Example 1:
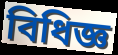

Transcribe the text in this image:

বিধিজ্ঞ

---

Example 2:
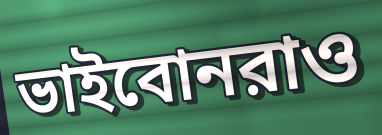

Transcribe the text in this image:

ভাইবোনরাও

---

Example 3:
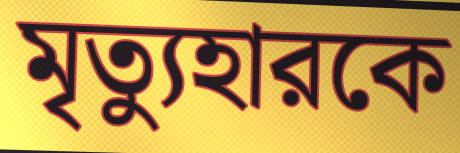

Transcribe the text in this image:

মৃত্যুহারকে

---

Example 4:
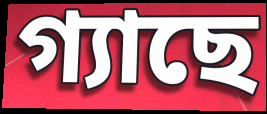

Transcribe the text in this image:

গ্যাছে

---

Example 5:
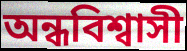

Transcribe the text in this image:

অন্ধবিশ্বাসী